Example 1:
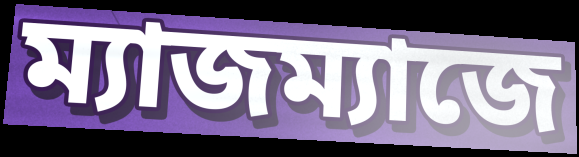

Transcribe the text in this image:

ম্যাজম্যাজে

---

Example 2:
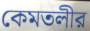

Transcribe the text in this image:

কেমতলীর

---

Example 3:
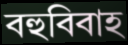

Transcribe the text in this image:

বহুবিবাহ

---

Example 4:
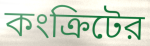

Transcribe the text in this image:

কংক্রিটের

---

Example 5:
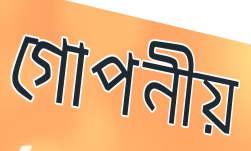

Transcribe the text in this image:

গোপনীয়